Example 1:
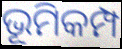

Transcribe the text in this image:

ଭୂମିକମ୍ପ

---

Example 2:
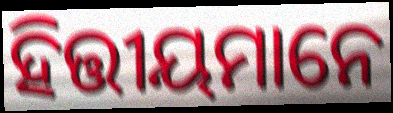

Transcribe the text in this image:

ହିତ୍ତୀୟମାନେ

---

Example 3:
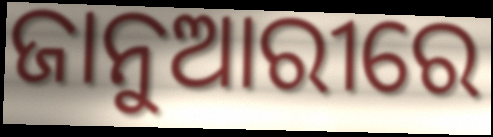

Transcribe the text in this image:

ଜାନୁଆରୀରେ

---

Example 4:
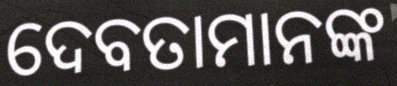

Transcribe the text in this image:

ଦେବତାମାନଙ୍କ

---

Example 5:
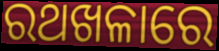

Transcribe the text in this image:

ରଥଖଳାରେ